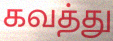
கவத்து